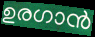
ഉരഗാൻ